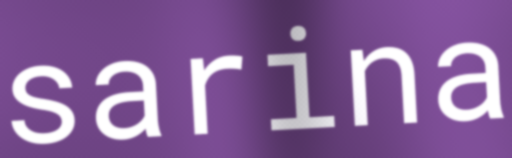
sarina